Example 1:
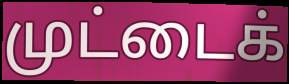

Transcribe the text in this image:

முட்டைக்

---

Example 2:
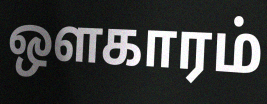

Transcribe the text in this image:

ஔகாரம்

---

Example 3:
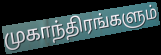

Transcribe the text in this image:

முகாந்திரங்களும்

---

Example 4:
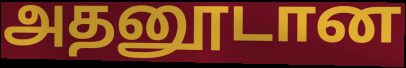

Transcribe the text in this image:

அதனூடான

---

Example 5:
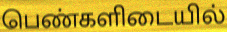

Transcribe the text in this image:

பெண்களிடையில்